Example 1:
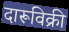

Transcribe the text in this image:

दारूविक्री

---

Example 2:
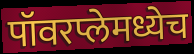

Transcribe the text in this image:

पॉवरप्लेमध्येच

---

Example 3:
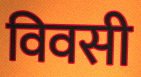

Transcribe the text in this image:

विवसी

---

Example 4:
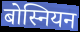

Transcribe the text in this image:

बोस्नियन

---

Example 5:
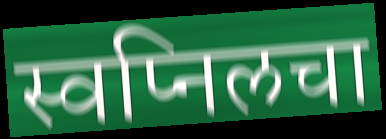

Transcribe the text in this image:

स्वप्निलचा